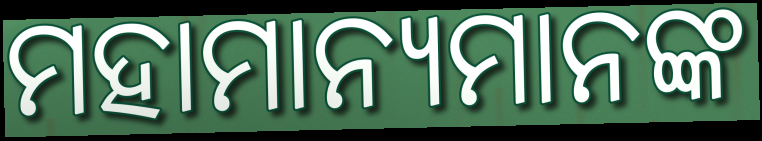
ମହାମାନ୍ୟମାନଙ୍କ